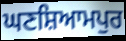
ਘਣਸ਼ਿਆਮਪੁਰ